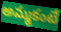
అమ్మకంటే